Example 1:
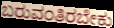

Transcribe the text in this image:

ಬರುವಂತಿರಬೇಕು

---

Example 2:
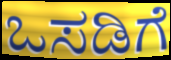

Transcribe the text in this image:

ಒಸಡಿಗೆ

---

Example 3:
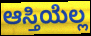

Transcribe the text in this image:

ಆಸ್ತಿಯೆಲ್ಲ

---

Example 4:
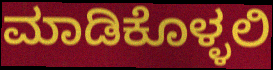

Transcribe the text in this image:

ಮಾಡಿಕೊಳ್ಳಲಿ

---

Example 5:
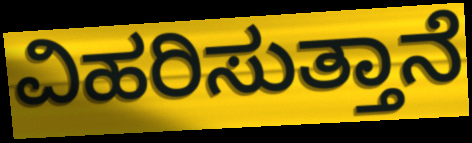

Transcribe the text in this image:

ವಿಹರಿಸುತ್ತಾನೆ